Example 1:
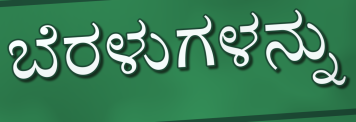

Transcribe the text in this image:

ಬೆರಳುಗಳನ್ನು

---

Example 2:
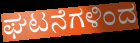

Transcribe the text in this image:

ಘಟನೆಗಳಿಂದ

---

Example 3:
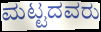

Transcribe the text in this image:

ಮಟ್ಟದವರು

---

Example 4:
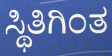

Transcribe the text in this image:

ಸ್ಥಿತಿಗಿಂತ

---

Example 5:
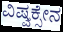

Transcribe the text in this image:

ವಿಷ್ವಕ್ಸೇನ